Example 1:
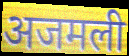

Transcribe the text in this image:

अजमली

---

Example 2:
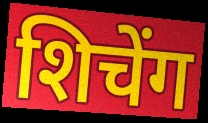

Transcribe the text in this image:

शिचेंग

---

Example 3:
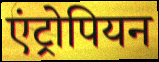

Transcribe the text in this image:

एंट्रोपियन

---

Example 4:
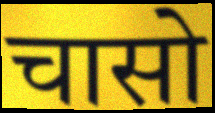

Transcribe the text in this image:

चासो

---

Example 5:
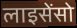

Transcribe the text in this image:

लाइसेंसो